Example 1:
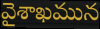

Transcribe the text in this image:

వైశాఖమున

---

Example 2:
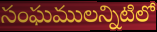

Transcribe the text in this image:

సంఘములన్నిటిలో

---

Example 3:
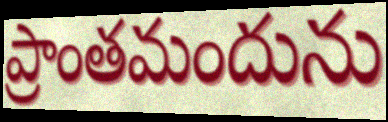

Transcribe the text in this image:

ప్రాంతమందును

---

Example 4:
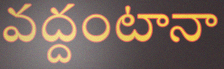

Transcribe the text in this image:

వద్దంటానా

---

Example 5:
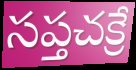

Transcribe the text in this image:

సప్తచక్రే